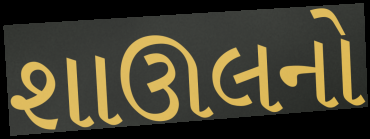
શાઊલનો